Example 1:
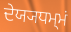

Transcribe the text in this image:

ਦੇਯ੍ਯਧਮ੍ਮਂ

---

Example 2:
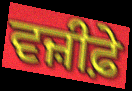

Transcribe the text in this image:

ਵਜ਼ੀਫ਼ੇ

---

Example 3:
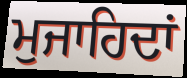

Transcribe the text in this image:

ਮੁਜਾਹਿਦਾਂ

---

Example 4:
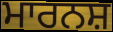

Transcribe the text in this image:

ਮਾਰਨਸ਼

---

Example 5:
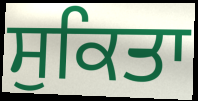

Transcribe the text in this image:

ਸੁਕਿਤਾ